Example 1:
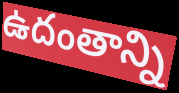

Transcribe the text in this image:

ఉదంతాన్ని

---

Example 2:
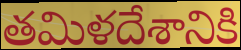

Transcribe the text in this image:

తమిళదేశానికి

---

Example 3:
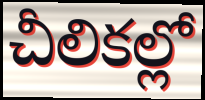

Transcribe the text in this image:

చీలికల్లో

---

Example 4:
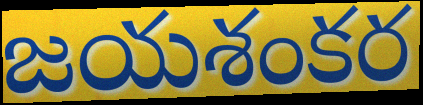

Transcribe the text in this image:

జయశంకర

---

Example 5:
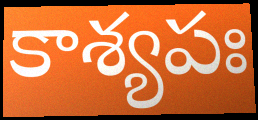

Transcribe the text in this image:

కాశ్యపః